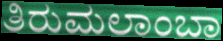
ತಿರುಮಲಾಂಬಾ